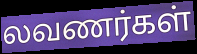
லவணர்கள்